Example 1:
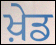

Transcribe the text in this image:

ਖ਼ੇਡ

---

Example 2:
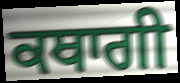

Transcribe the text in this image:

ਕਥਾਗੀ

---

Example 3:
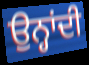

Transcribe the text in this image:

ਉਨ੍ਹਾਂਦੀ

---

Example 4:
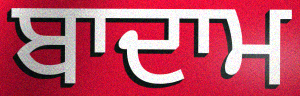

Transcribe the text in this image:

ਬਾਦਾਮ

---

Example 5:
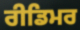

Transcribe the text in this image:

ਰੀਡਿਮਰ